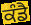
ਕੰਡੈ